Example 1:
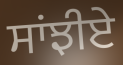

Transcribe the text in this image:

ਸਾਂਝੀਏ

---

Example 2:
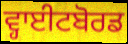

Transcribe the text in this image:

ਵ੍ਹਾਈਟਬੋਰਡ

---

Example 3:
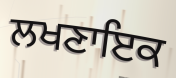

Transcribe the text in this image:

ਲਖਣਾਇਕ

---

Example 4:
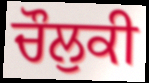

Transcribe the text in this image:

ਚੌਲੁਕੀ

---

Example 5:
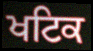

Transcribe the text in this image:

ਖਟਿਕ